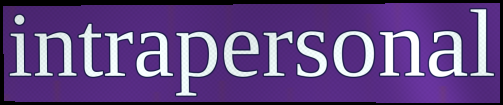
intrapersonal